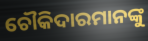
ଚୌକିଦାରମାନଙ୍କୁ